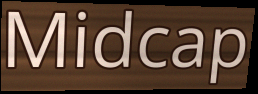
Midcap